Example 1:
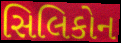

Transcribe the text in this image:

સિલિકોન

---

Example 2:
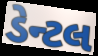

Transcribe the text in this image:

ડેન્ટલ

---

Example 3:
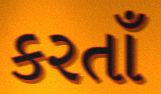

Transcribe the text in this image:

કરતાઁ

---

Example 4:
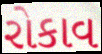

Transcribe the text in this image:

રોકાવ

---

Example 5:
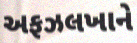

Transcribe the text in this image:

અફઝલખાને